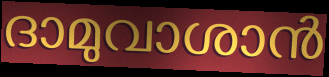
ദാമുവാശാൻ